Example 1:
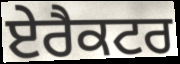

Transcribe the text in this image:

ਏਰੈਕਟਰ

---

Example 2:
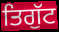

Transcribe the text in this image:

ਤਿਗੁੱਟ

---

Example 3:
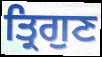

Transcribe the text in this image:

ਤ੍ਰਿਗੁਣ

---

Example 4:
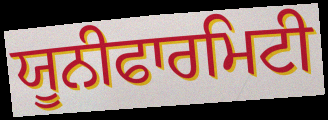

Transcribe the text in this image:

ਯੂਨੀਫਾਰਮਿਟੀ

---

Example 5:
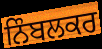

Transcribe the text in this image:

ਨਿੰਬਲਕਰ